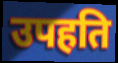
उपहति